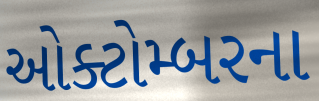
ઓક્ટોમ્બરના